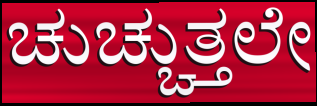
ಚುಚ್ಚುತ್ತಲೇ